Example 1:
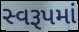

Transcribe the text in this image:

સ્વરૂપમાં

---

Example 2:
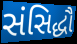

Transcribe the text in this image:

સંસિદ્ધૌ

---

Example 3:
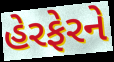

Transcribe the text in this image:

હેરફેરને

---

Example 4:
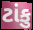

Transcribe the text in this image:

ટાંકુ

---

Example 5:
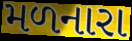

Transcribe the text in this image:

મળનારા